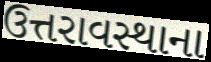
ઉત્તરાવસ્થાના